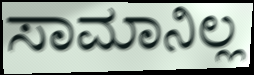
ಸಾಮಾನಿಲ್ಲ